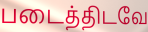
படைத்திடவே